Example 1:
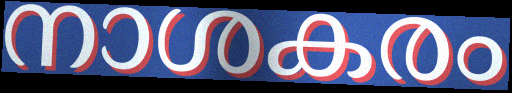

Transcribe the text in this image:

നാശകരം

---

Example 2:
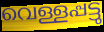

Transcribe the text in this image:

വെള്ളപ്പട്ടു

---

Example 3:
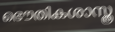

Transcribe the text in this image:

ഭൌതികശാസ്ത്ര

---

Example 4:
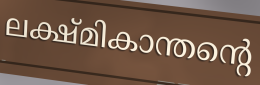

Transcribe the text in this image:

ലക്ഷ്മികാന്തന്റെ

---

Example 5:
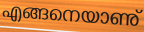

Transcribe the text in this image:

എങ്ങനെയാണു്